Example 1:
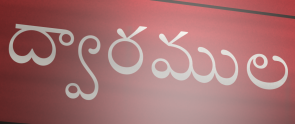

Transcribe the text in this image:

ద్వారముల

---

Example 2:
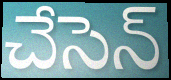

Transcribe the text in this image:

చేసెన్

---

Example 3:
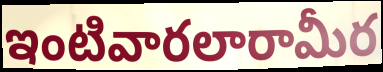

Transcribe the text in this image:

ఇంటివారలారామీర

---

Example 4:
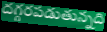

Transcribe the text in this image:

దగ్గరపడుతున్నది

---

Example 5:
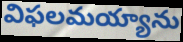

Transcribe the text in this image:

విఫలమయ్యాను